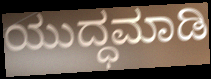
ಯುದ್ಧಮಾಡಿ